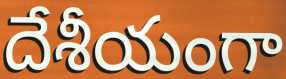
దేశీయంగా